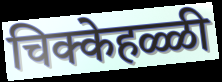
चिक्केहळ्ळी